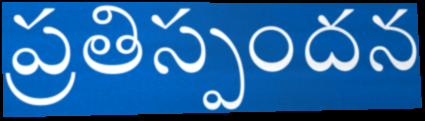
ప్రతిస్పందన